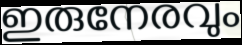
ഇരുനേരവും